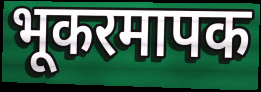
भूकरमापक